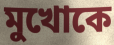
মুখোকে